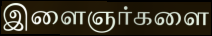
இளைஞர்களை